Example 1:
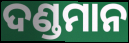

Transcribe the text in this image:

ଦଣ୍ଡମାନ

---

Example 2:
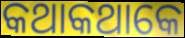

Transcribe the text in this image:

କଥାକଥାକେ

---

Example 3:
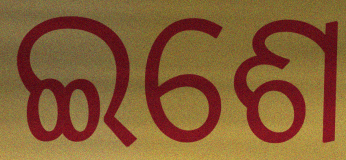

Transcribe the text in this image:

ଇଶେ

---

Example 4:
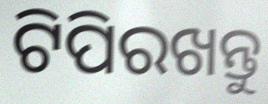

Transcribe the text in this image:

ଟିପିରଖନ୍ତୁ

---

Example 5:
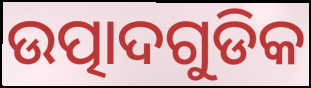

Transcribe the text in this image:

ଉତ୍ପାଦଗୁଡିକ